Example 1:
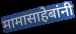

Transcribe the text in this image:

मामासाहेबांनी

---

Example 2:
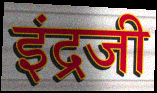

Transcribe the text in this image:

इंद्रजी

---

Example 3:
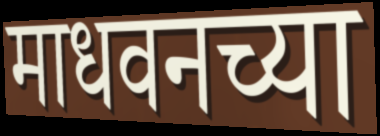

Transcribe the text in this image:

माधवनच्या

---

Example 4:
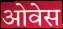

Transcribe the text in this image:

ओवेस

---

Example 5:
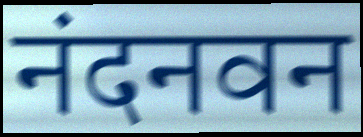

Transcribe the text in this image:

नंदनवन